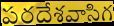
పరదేశవాసిగ